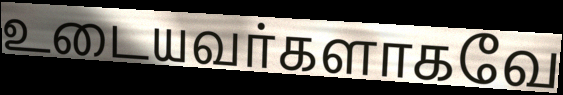
உடையவர்களாகவே